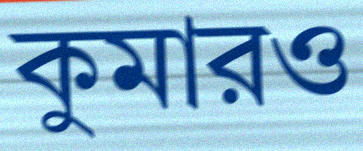
কুমারও